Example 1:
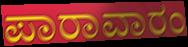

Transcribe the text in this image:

ಪಾರಾವಾರಂ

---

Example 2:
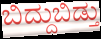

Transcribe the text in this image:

ಬಿದ್ದುಬಿಡ್ತು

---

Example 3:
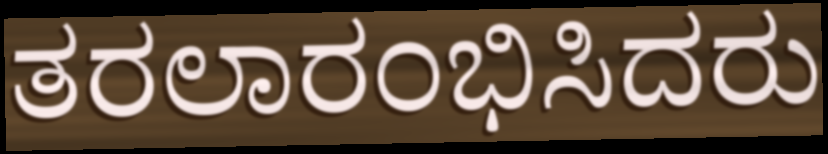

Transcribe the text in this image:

ತರಲಾರಂಭಿಸಿದರು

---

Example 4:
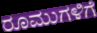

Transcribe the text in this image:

ರೂಮುಗಳಿಗೆ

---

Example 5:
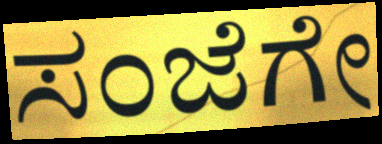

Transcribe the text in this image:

ಸಂಜೆಗೇ